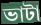
ভাটা